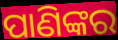
ପାଣିଙ୍କର